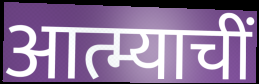
आत्म्याचीं